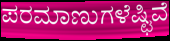
ಪರಮಾಣುಗಳೆಷ್ಟಿವೆ